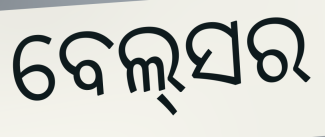
ବେଲ୍‌ସର